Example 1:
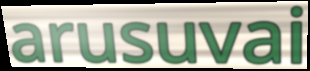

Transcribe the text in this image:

arusuvai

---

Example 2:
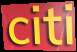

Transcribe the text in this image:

citi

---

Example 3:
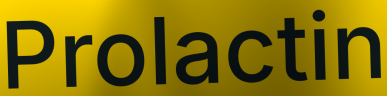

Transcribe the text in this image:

Prolactin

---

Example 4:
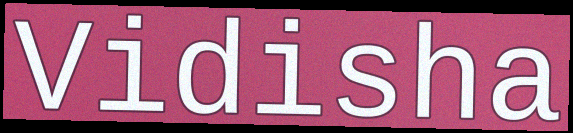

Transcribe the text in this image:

Vidisha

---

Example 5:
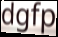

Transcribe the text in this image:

dgfp